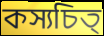
কস্যচিত্